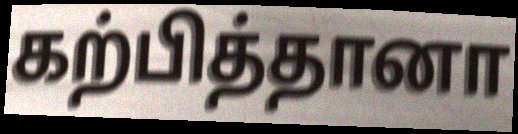
கற்பித்தானா